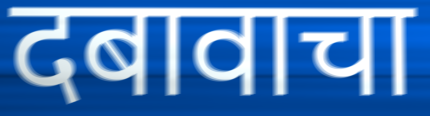
दबावाचा